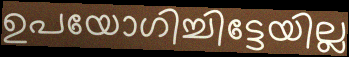
ഉപയോഗിച്ചിട്ടേയില്ല